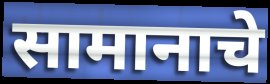
सामानाचे